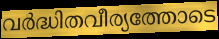
വർദ്ധിതവീര്യത്തോടെ